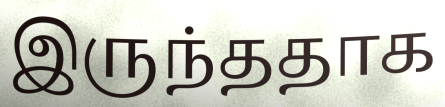
இருந்ததாக